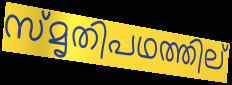
സ്മൃതിപഥത്തില്